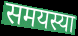
समयस्या